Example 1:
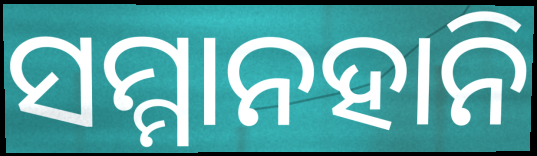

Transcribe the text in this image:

ସମ୍ମାନହାନି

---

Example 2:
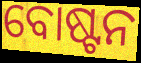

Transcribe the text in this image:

ବୋଷ୍ଟନ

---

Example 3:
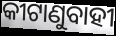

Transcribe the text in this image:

କୀଟାଣୁବାହୀ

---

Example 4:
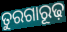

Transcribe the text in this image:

ତୁରଗାରୂଢ଼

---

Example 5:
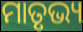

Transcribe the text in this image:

ମାତୃଭ୍ୟ